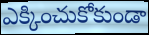
ఎక్కించుకోకుండా